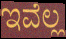
ಇವೆಲ್ಲ